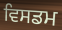
ਵਿਸਡਮ